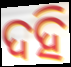
ଦହି